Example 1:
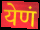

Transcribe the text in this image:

येणं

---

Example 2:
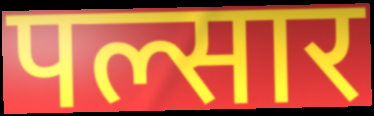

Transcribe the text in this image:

पल्सार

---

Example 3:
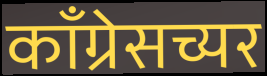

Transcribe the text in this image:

काँग्रेसच्यर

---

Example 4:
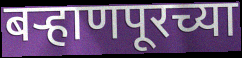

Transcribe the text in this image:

बऱ्हाणपूरच्या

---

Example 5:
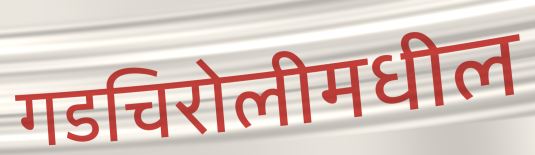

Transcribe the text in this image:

गडचिरोलीमधील